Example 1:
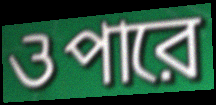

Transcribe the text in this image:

ওপারে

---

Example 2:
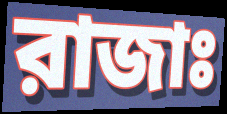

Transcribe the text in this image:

রাজাঃ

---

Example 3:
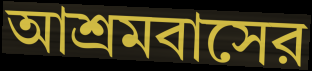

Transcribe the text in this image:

আশ্রমবাসের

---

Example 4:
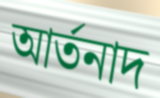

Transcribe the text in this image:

আর্তনাদ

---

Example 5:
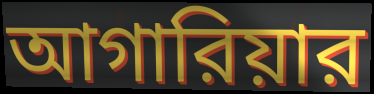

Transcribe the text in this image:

আগারিয়ার